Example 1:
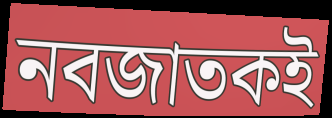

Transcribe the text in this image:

নবজাতকই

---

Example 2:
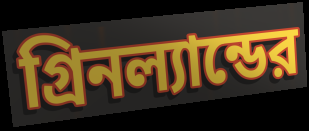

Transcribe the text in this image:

গ্রিনল্যান্ডের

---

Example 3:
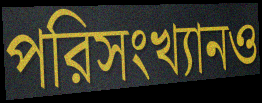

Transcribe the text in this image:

পরিসংখ্যানও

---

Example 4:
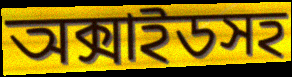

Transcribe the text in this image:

অক্সাইডসহ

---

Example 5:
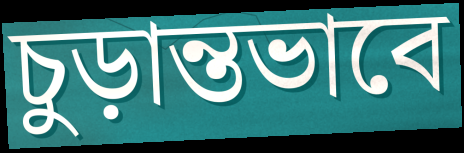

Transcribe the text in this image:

চুড়ান্তভাবে